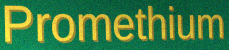
Promethium